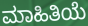
ಮಾಹಿತಿಯೆ